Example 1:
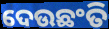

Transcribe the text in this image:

ଦେଉଛଂତି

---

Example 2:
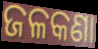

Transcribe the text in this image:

ଜଳକଣା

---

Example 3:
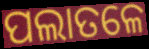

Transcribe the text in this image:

ପଲାତଳେ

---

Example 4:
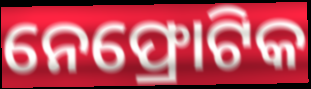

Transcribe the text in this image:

ନେଫ୍ରୋଟିକ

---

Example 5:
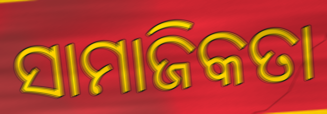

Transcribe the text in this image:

ସାମାଜିକତା